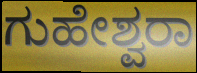
ಗುಹೇಶ್ವರಾ